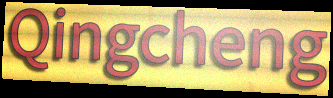
Qingcheng